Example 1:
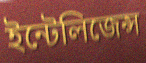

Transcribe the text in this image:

ইন্টেলিজেন্স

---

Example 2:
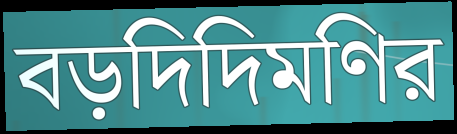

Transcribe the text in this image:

বড়দিদিমণির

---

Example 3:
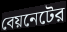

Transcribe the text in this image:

বেয়নেটের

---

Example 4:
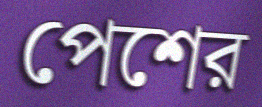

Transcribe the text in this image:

পেশের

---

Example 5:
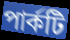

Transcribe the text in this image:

পার্কটি